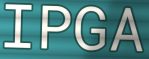
IPGA